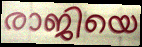
രാജിയെ